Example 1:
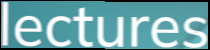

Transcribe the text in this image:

lectures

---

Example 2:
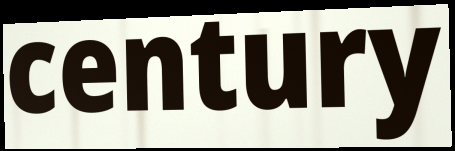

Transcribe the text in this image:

century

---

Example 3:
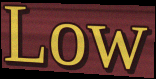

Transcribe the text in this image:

Low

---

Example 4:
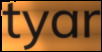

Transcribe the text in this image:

tyar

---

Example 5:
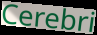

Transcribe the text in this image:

Cerebri